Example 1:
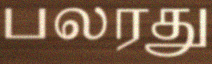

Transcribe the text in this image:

பலரது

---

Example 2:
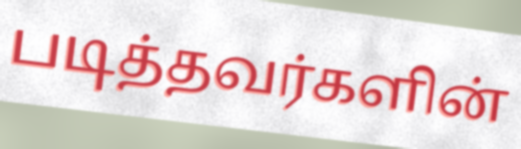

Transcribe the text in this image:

படித்தவர்களின்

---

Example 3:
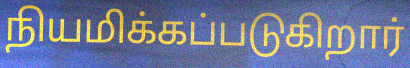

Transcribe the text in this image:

நியமிக்கப்படுகிறார்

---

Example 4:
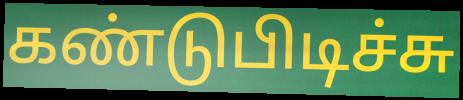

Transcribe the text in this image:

கண்டுபிடிச்சு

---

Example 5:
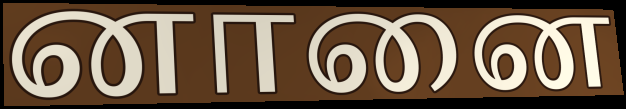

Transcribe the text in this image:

னானை